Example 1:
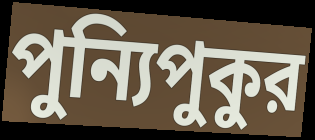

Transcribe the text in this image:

পুন্যিপুকুর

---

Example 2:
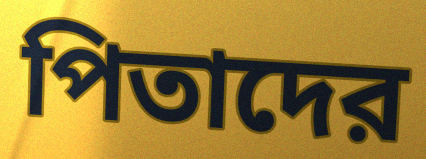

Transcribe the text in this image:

পিতাদের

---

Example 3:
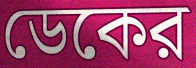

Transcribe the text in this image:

ডেকের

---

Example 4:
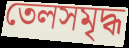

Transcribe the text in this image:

তেলসমৃদ্ধ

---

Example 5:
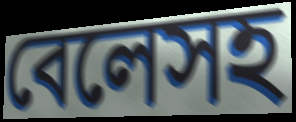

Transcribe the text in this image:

বেলেসহ